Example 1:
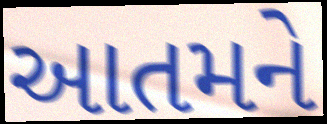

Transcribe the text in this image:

આતમને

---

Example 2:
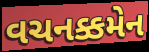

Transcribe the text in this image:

વચનક્કમેન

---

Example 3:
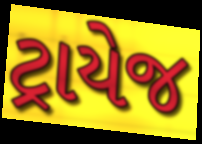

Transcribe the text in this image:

ટ્રાયેજ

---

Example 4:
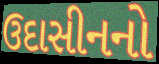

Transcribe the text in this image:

ઉદાસીનનો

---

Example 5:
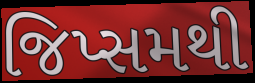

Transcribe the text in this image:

જિપ્સમથી